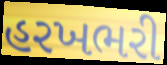
હરખભરી